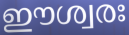
ഈശ്വരഃ